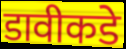
डावीकडे